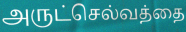
அருட்செல்வத்தை